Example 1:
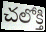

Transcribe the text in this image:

చలోక్తి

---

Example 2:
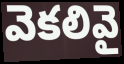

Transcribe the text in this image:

వెకలివై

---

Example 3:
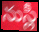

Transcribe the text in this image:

నుస్లీ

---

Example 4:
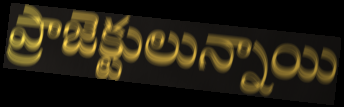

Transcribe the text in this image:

ప్రాజెక్టులున్నాయి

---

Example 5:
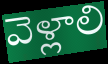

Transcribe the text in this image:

వెళ్లాలి